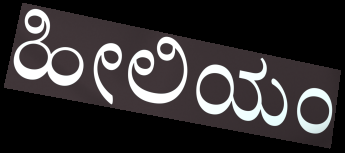
ಹೀಲಿಯಂ